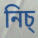
নিচ্